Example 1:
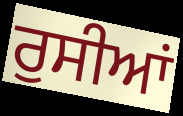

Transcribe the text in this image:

ਰੁਸੀਆਂ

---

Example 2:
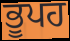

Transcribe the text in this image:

ਭੂਪਹ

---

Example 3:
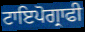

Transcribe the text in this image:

ਟਾਇਪੋਗ੍ਰਾਫੀ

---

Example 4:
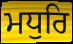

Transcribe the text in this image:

ਮਧੁਰਿ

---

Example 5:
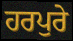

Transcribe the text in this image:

ਹਰਪੁਰੇ